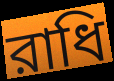
রাধি